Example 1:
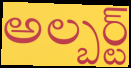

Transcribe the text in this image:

అల్బర్ట్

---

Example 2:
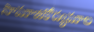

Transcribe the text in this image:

సామాజికోద్యమాల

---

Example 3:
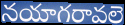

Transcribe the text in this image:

నయాగరావలె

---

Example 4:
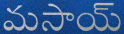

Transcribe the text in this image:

మసాయ్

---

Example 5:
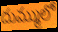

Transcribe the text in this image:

దుమ్ములో